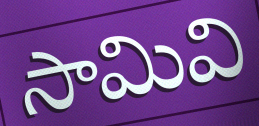
సామివి